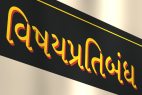
વિષયપ્રતિબંધ